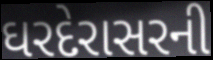
ઘરદેરાસરની